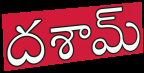
దశామ్